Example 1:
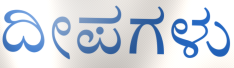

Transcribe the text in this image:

ದೀಪಗಳು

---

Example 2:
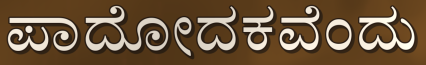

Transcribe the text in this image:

ಪಾದೋದಕವೆಂದು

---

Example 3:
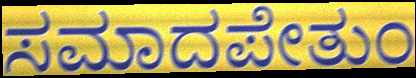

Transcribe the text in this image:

ಸಮಾದಪೇತುಂ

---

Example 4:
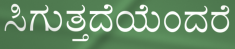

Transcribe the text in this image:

ಸಿಗುತ್ತದೆಯೆಂದರೆ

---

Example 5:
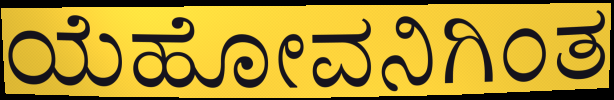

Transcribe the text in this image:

ಯೆಹೋವನಿಗಿಂತ